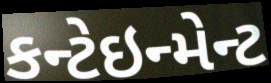
કન્ટેઇન્મેન્ટ